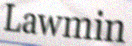
Lawmin